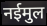
नईमुल